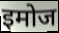
इमोज